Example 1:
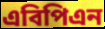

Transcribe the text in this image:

এবিপিএন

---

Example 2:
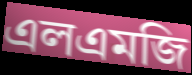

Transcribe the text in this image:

এলএমজি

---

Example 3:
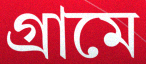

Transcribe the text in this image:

গ্রামে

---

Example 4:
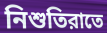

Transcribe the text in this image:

নিশুতিরাতে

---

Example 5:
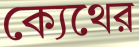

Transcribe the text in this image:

ক্যেথের